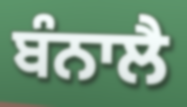
ਬੰਨਾਲੈ